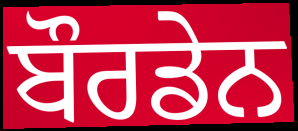
ਬੌਰਡੇਨ